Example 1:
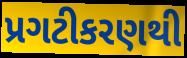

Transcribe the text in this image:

પ્રગટીકરણથી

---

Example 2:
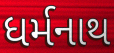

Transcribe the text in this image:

ધર્મનાથ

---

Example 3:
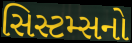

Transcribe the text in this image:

સિસ્ટમ્સનો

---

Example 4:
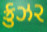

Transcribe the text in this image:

ક્રુઝર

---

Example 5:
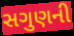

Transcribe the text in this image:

સગુણની